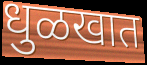
धुळखात